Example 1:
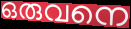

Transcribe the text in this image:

ഒരുവനെ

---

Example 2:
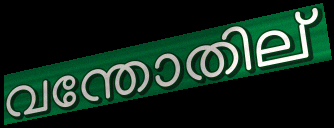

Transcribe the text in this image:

വന്തോതില്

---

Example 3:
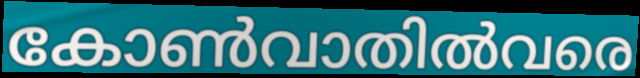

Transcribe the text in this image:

കോൺവാതിൽവരെ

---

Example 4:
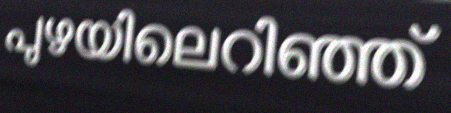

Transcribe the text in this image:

പുഴയിലെറിഞ്ഞ്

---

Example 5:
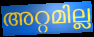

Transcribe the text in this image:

അറ്റമില്ല